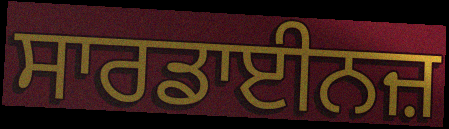
ਸਾਰਡਾਈਨਜ਼